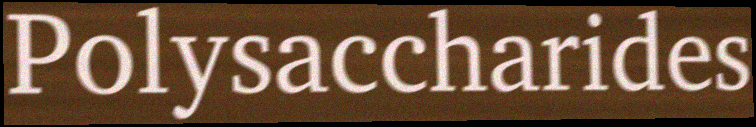
Polysaccharides